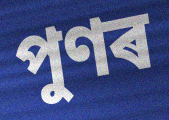
পুণৰ